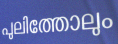
പുലിത്തോലും